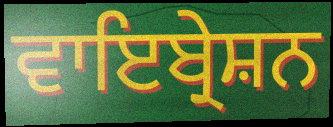
ਵਾਇਬ੍ਰੇਸ਼ਨ